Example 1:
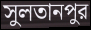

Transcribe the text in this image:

সুলতানপুর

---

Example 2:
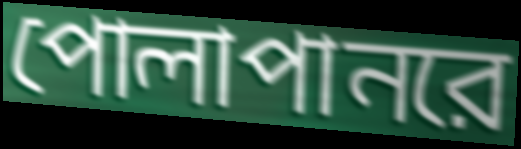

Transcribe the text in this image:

পোলাপানরে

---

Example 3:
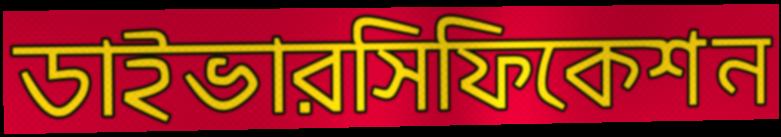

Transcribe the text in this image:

ডাইভারসিফিকেশন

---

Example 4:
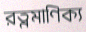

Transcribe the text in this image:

রত্নমাণিক্য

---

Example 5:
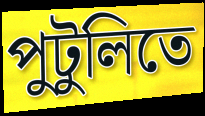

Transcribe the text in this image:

পুটুলিতে